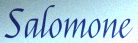
Salomone